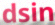
dsin